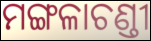
ମଙ୍ଗଳାଚଣ୍ଡୀ